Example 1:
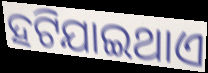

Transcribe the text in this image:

ହଟିଯାଇଥାଏ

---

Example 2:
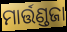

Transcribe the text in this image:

ମାର୍ତ୍ତଣ୍ଡଜା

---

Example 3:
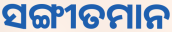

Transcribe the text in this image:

ସଙ୍ଗୀତମାନ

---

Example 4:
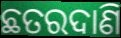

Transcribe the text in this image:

ଛତରଦାଣି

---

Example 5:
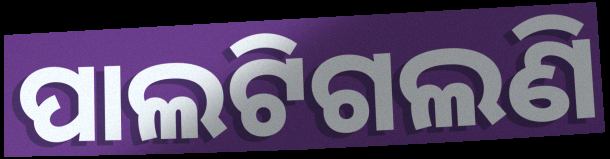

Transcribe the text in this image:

ପାଲଟିଗଲଣି